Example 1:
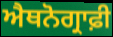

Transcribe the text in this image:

ਐਥਨੋਗ੍ਰਾਫ਼ੀ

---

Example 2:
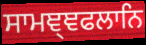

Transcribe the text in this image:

ਸਾਮਞ੍ਞਫਲਾਨਿ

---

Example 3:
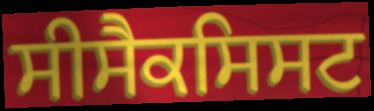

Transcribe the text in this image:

ਸੀਸੈਕਸਿਸਟ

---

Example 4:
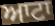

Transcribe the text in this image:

ਆਟਾ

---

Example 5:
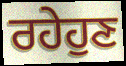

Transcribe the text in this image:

ਰਹੇਹੁਣ